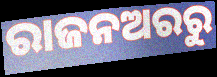
ରାଜନଅରରୁ